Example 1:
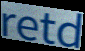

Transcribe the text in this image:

retd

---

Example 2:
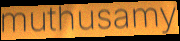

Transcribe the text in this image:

muthusamy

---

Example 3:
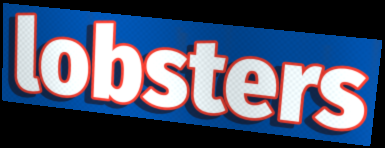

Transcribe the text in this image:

lobsters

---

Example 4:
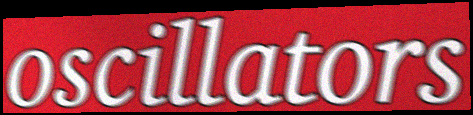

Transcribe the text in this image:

oscillators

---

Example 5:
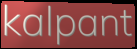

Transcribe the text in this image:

kalpant